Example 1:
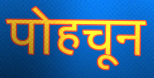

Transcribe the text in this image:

पोहचून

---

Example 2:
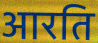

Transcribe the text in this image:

आरति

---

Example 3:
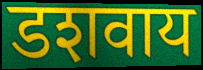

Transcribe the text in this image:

डशवाय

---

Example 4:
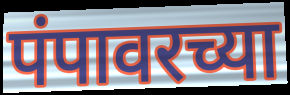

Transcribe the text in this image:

पंपावरच्या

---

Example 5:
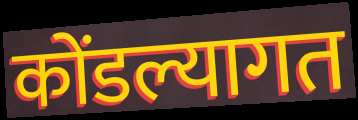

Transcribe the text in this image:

कोंडल्यागत